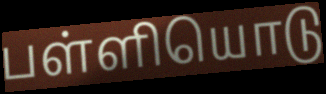
பள்ளியொடு